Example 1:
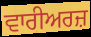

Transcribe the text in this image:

ਵਾਰੀਅਰਜ਼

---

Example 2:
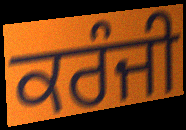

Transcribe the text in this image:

ਕਰੰਜੀ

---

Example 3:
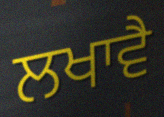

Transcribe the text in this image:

ਲਖਾਵੈ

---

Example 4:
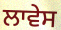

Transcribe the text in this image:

ਲਾਵੇਸ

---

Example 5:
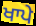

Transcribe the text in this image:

ਖਾਪੇ